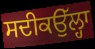
ਸਦੀਕਉੱਲ੍ਹਾ